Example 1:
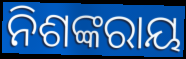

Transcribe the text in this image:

ନିଶଙ୍କରାୟ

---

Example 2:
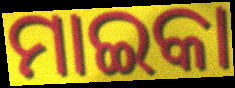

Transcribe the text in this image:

ମାଇକା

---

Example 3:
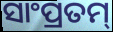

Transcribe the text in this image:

ସାଂପ୍ରତମ୍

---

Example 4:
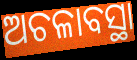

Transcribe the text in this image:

ଅଚଳାବସ୍ଥା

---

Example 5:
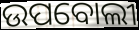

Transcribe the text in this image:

ଉପବୋଲୀ